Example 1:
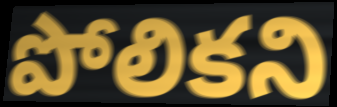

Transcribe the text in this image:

పోలికని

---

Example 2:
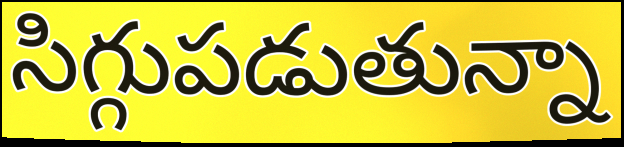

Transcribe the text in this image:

సిగ్గుపడుతున్నా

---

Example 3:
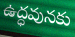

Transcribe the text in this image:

ఉద్ధవునకు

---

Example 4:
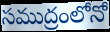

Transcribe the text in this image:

సముద్రంలోనో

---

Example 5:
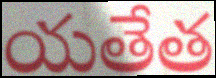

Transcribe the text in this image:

యతేత